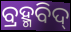
ବ୍ରହ୍ମବିଦ୍